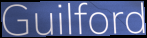
Guilford